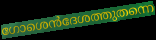
ഗോശെൻദേശത്തുതന്നെ